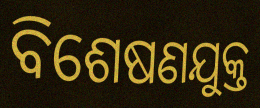
ବିଶେଷଣଯୁକ୍ତ